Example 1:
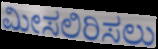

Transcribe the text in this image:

ಮೀಸಲಿರಿಸಲು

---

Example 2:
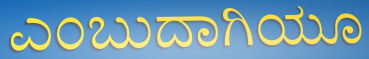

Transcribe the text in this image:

ಎಂಬುದಾಗಿಯೂ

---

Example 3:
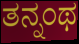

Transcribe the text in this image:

ತನ್ನಂಥ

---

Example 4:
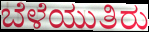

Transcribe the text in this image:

ಬೆಳೆಯುತಿರು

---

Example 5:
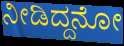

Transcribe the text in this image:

ನೀಡಿದ್ದನೋ